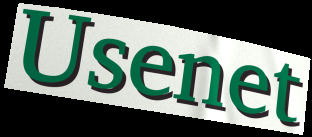
Usenet